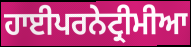
ਹਾਈਪਰਨੇਟ੍ਰੀਮੀਆ